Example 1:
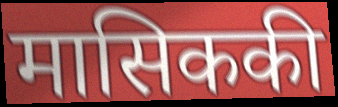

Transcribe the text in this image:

मासिककी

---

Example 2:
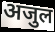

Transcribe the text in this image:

अजुल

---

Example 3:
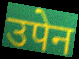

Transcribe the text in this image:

उपेन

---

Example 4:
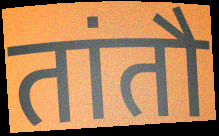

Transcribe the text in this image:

तांतौ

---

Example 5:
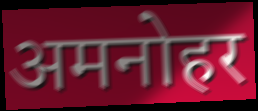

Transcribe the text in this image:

अमनोहर